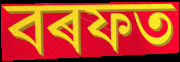
বৰফত